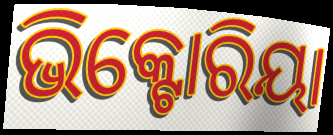
ଭିକ୍ଟୋରିୟା